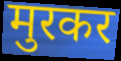
मुरकर